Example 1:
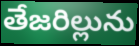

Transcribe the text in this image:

తేజరిల్లును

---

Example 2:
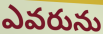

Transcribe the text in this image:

ఎవరును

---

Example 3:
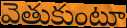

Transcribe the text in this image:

వెతుకుంటూ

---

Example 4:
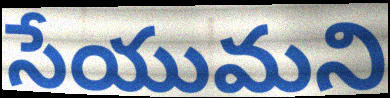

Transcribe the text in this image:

సేయుమని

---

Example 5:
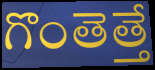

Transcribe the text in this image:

గొంతెత్తే